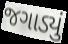
જગાડ્યું